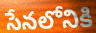
సేనలోనికి